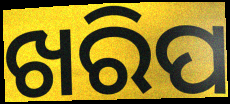
ଖରିପ